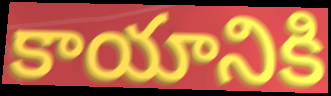
కాయానికి